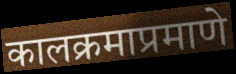
कालक्रमाप्रमाणे